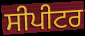
ਸੀਪੀਟਰ